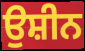
ਉਸ਼ੀਨ